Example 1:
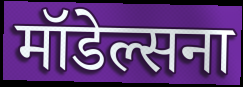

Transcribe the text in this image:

मॉडेल्सना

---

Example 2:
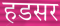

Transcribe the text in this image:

हडसर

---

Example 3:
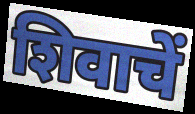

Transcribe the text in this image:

शिवाचें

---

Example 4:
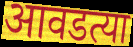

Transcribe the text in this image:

आवडत्या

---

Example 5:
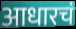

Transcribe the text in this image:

आधारचं